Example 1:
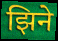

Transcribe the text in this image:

झिने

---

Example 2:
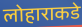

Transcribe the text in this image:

लोहाराकडे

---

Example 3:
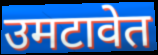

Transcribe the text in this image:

उमटावेत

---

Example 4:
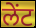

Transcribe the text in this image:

लेंट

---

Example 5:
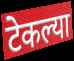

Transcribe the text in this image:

टेकल्या